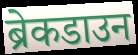
ब्रेकडाउन